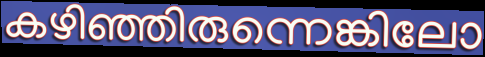
കഴിഞ്ഞിരുന്നെങ്കിലോ